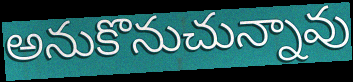
అనుకొనుచున్నావు